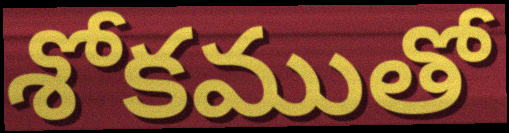
శోకముతో